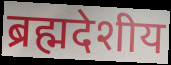
ब्रह्मदेशीय